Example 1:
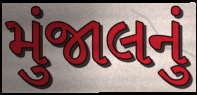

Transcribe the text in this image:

મુંજાલનું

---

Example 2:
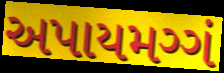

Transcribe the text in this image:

અપાયમગ્ગં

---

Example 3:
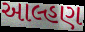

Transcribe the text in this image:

આલ્હણ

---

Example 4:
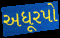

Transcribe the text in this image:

અધૂરપો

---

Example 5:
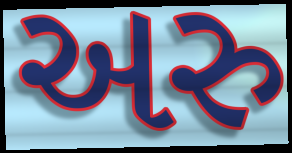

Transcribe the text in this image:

અરુ